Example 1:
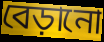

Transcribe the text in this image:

বেড়ানো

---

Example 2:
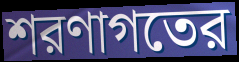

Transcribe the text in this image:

শরণাগতের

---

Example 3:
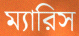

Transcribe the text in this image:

ম্যারিস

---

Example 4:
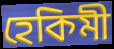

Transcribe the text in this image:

হেকিমী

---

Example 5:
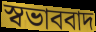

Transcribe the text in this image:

স্বভাববাদ